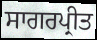
ਸਾਗਰਪ੍ਰੀਤ